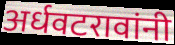
अर्धवटरावांनी